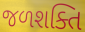
જળશક્તિ